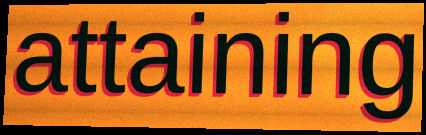
attaining